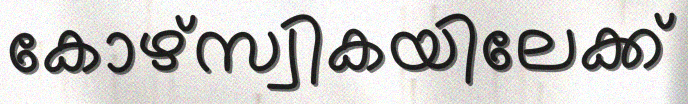
കോഴ്സ്വികയിലേക്ക്